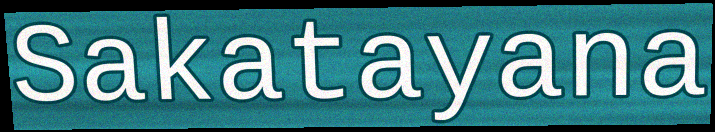
Sakatayana